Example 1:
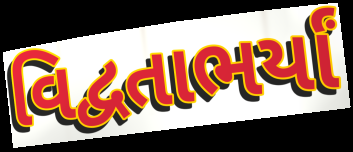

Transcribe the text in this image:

વિદ્વતાભર્યાં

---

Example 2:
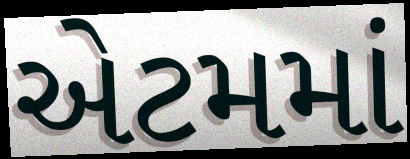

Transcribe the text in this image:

એટમમાં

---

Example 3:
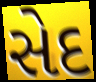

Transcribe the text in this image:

સેદ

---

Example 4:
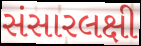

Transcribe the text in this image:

સંસારલક્ષી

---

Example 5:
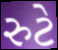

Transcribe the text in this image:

રુટે